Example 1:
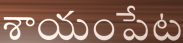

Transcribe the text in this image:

శాయంపేట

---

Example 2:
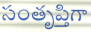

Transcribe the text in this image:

సంతృప్తిగా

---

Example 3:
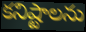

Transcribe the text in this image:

కనిష్టాలను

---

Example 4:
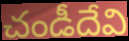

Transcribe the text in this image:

చండీదేవి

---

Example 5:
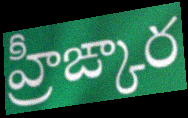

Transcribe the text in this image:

హ్రీఙ్కార